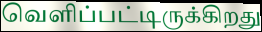
வெளிப்பட்டிருக்கிறது